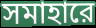
সমাহারে